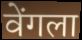
वेंगला